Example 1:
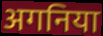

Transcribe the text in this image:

अगनिया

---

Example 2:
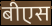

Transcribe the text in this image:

बीएस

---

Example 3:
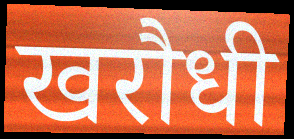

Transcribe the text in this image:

खरौधी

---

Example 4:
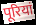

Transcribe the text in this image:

पूरियां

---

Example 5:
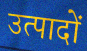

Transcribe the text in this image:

उत्पादों